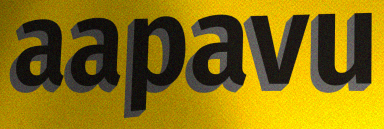
aapavu